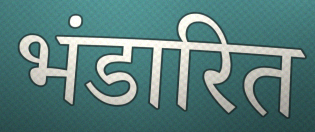
भंडारित